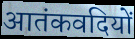
आतंकवदियों